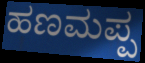
ಹಣಮಪ್ಪ